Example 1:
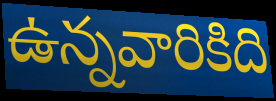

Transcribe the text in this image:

ఉన్నవారికిది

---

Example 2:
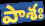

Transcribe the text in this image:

పాశః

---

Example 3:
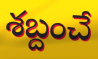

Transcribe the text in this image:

శబ్దంచే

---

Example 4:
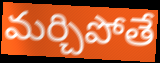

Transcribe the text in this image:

మర్చిపోతే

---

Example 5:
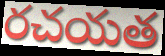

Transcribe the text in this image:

రచయత